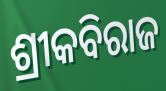
ଶ୍ରୀକବିରାଜ